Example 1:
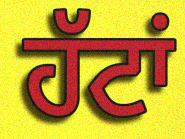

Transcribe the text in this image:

ਹੱਟਾਂ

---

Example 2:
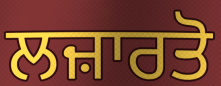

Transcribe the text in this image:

ਲਜ਼ਾਰਤੋ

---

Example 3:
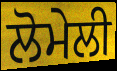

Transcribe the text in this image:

ਲੋਮੇਲੀ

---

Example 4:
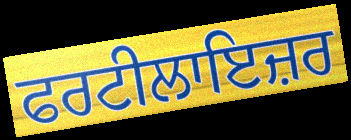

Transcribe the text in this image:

ਫਰਟੀਲਾਇਜ਼ਰ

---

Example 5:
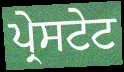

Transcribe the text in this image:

ਪ੍ਰੇਸਟੇਟ